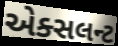
એક્સલન્ટ